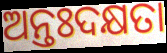
ଅନ୍ତଃଦକ୍ଷତା